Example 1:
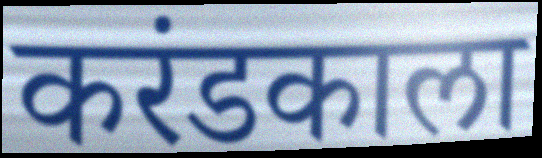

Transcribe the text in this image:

करंडकाला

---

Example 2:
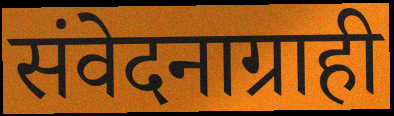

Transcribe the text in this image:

संवेदनाग्राही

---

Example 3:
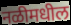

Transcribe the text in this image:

नळीमधील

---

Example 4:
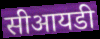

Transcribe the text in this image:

सीआयडी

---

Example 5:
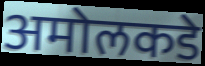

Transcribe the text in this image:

अमोलकडे